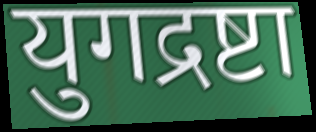
युगद्रष्टा